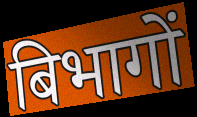
बिभागों